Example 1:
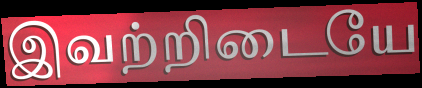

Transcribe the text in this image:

இவற்றிடையே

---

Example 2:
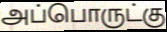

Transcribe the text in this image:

அப்பொருட்கு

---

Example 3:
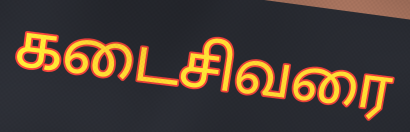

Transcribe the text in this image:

கடைசிவரை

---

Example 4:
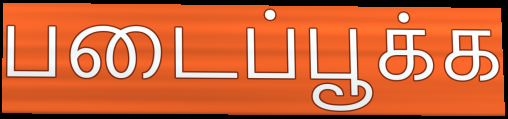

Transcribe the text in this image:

படைப்பூக்க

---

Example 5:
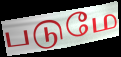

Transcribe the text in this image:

படுமே